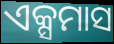
ଏକ୍ସମାସ